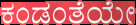
ಕಂಡಂತೆಯೇ